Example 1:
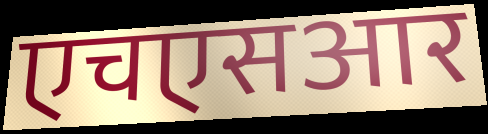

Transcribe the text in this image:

एचएसआर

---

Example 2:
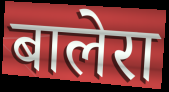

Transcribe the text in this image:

बालेरा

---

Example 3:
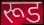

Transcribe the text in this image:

रूड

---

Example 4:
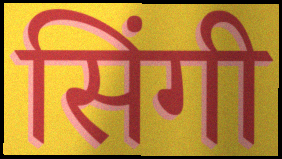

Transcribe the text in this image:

सिंगी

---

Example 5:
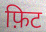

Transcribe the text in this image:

फ़िट